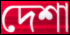
দেশা